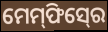
ମେମ୍‍ଫିସ୍‍ରେ